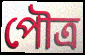
পৌত্র